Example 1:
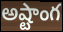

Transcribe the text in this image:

అష్టాంగ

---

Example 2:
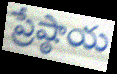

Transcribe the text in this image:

ప్రేష్ఠాయ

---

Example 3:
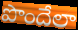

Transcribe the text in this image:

పొందేలా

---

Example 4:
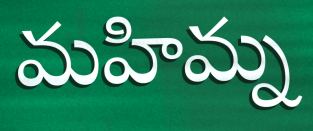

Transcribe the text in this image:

మహిమ్న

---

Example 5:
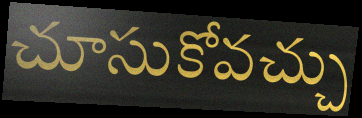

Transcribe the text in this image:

చూసుకోవచ్చు